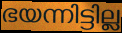
ഭയന്നിട്ടില്ല